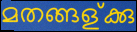
മതങ്ങള്ക്കു